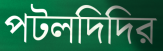
পটলদিদির